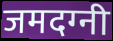
जमदग्नी